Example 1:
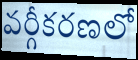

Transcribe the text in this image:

వర్గీకరణలో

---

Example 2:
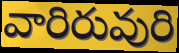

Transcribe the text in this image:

వారిరువురి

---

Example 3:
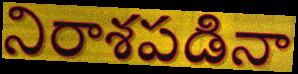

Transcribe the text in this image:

నిరాశపడినా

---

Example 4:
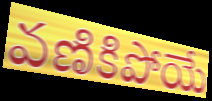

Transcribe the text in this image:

వణికిపోయే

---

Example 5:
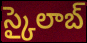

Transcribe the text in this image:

స్కైలాబ్